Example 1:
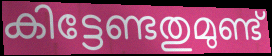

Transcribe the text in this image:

കിട്ടേണ്ടതുമുണ്ട്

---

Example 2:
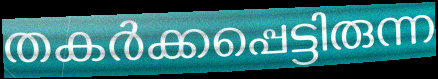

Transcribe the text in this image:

തകർക്കപ്പെട്ടിരുന്ന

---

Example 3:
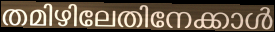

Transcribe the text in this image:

തമിഴിലേതിനേക്കാൾ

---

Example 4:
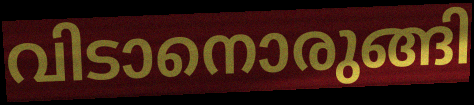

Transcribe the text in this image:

വിടാനൊരുങ്ങി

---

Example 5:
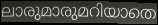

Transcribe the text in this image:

ലാരുമാരുമറിയാതെ